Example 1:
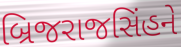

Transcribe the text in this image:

બ્રિજરાજસિંહને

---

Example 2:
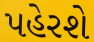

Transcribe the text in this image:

પહેરશે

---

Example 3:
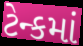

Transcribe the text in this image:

ટેન્કમાં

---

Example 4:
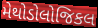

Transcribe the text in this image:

મેથોડોલોજિકલ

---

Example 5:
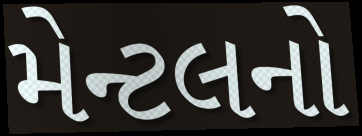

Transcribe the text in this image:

મેન્ટલનો